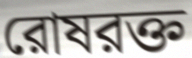
রোষরক্ত